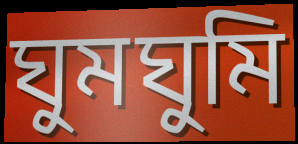
ঘুমঘুমি